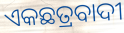
ଏକଛତ୍ରବାଦୀ